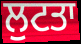
ਲੁਟਤਾ